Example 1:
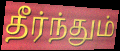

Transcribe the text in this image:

தீர்ந்தும்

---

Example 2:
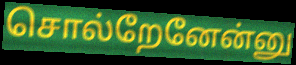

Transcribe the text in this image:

சொல்றேனேன்னு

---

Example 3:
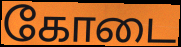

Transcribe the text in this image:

கோடை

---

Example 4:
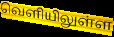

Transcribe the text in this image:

வெளியிலுள்ள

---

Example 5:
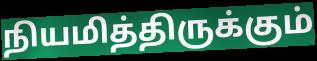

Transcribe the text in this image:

நியமித்திருக்கும்